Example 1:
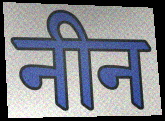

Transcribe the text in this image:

नीन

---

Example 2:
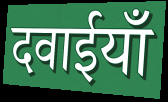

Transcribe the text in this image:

दवाईयाँ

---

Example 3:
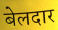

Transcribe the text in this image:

बेलदार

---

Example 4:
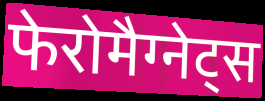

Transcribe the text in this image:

फेरोमैग्नेट्स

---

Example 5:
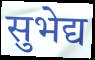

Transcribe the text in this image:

सुभेद्य